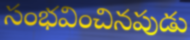
సంభవించినపుడు